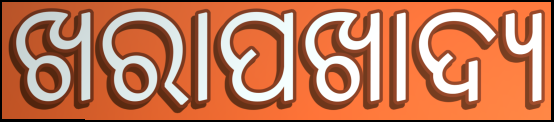
ଖରାପଖାଦ୍ୟ